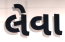
લેવા